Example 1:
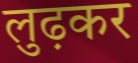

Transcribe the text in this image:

लुढ़कर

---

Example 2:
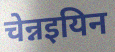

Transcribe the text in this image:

चेन्नइयिन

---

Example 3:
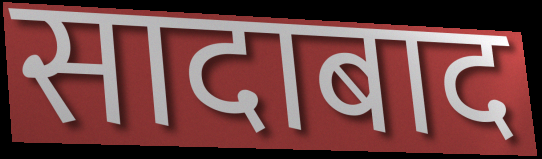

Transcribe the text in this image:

सादाबाद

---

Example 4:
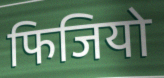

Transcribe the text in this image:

फिजियो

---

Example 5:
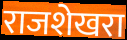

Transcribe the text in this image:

राजशेखरा